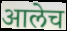
आलेच